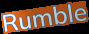
Rumble